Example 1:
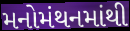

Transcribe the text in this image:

મનોમંથનમાંથી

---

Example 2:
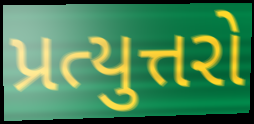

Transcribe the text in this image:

પ્રત્યુત્તરો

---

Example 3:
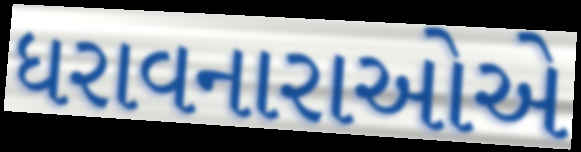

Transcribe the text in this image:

ધરાવનારાઓએ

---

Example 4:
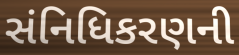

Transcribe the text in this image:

સંનિધિકરણની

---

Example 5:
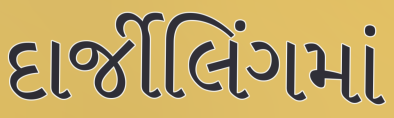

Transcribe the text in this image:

દાર્જીલિંગમાં